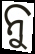
ନୁ